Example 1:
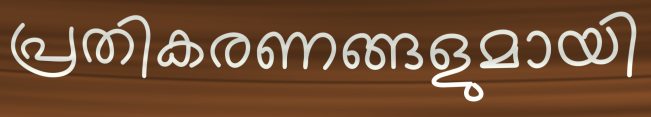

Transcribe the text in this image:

പ്രതികരണങ്ങളുമായി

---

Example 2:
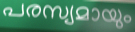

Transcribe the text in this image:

പരസ്യമായും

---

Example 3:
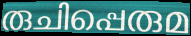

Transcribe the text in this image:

രുചിപ്പെരുമ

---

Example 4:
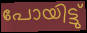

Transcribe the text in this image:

പോയിട്ടു്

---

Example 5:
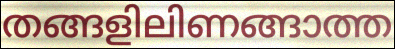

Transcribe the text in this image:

തങ്ങളിലിണങ്ങാത്ത